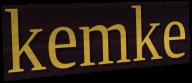
kemke